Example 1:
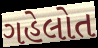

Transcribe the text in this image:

ગહેલોત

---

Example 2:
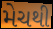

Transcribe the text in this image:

મેચથી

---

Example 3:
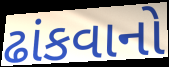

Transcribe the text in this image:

ઢાંકવાનો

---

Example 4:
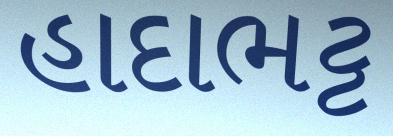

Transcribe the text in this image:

હાદાભટ્ટ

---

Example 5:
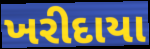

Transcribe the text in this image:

ખરીદાયા